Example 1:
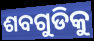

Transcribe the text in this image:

ଶବଗୁଡିକୁ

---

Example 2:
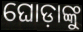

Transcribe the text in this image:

ଘୋଡ଼ାଙ୍କୁ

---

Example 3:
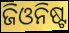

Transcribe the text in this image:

ଜିଓନିଷ୍ଟ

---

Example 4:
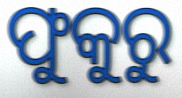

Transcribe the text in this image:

ଫୁକୁରୁ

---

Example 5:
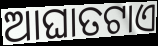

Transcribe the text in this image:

ଆଘାତଟାଏ